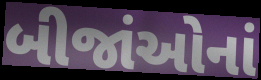
બીજાંઓનાં